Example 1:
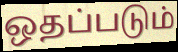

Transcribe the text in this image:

ஒதப்படும்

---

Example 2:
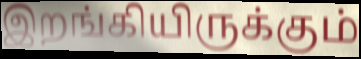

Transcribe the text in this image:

இறங்கியிருக்கும்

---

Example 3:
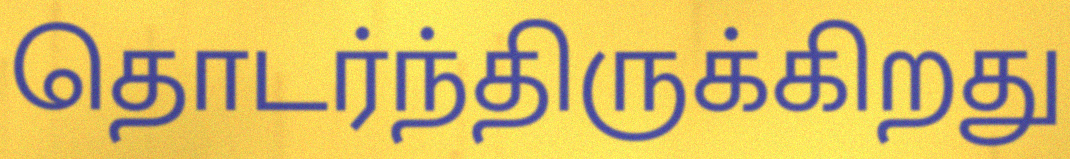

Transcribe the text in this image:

தொடர்ந்திருக்கிறது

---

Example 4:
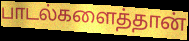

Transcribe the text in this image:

பாடல்களைத்தான்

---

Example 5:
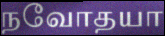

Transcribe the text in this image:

நவோதயா